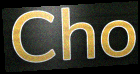
Cho